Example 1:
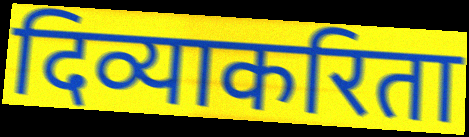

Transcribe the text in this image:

दिव्याकरिता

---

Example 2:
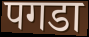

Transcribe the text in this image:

पगडा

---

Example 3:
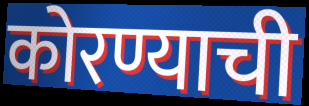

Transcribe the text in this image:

कोरण्याची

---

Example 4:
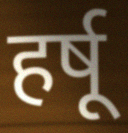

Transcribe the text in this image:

हर्षू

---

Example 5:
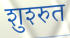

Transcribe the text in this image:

शुश्रुत